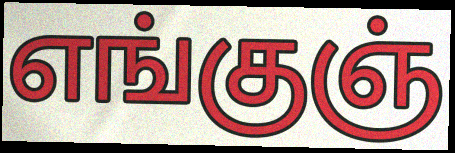
எங்குஞ்